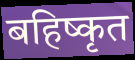
बहिष्कृत